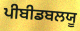
ਪੀਬੀਡਬਲਯੂ